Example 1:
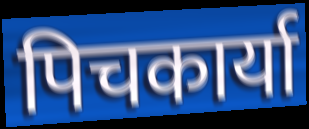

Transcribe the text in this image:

पिचकार्या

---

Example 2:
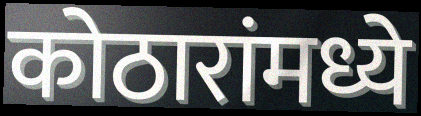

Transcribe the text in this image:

कोठारांमध्ये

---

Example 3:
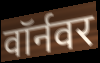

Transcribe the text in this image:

वॉर्नवर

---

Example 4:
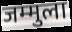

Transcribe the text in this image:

जम्मुला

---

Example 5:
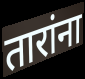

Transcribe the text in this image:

तारांना